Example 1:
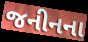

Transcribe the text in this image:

જનીનના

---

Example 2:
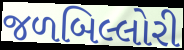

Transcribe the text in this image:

જળબિલ્લોરી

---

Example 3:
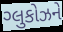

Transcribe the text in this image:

ગ્લુકોઝને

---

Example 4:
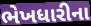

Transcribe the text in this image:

ભેખધારીના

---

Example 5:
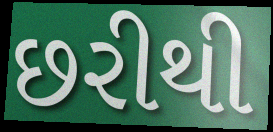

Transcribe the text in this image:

છરીથી